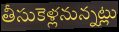
తీసుకెళ్లనున్నట్లు